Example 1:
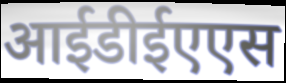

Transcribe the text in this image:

आईडीईएएस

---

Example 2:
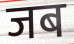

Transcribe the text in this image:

जब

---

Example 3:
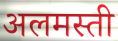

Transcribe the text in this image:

अलमस्ती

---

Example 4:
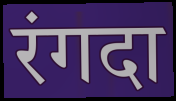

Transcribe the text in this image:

रंगदा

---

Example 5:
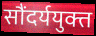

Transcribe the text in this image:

सौंदर्ययुक्त